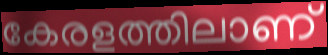
കേരളത്തിലാണ്